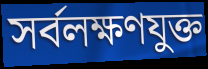
সর্বলক্ষণযুক্ত